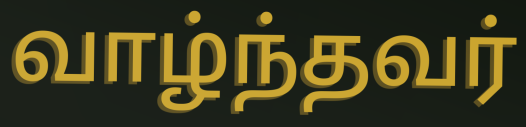
வாழ்ந்தவர்